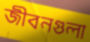
জীবনগুলা